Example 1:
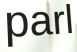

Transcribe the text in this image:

parl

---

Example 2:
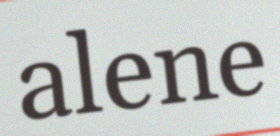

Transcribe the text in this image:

alene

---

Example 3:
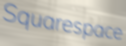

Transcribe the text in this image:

Squarespace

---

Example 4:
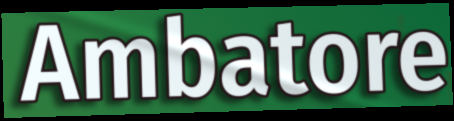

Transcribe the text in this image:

Ambatore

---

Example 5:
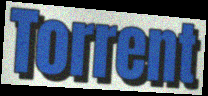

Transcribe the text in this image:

Torrent